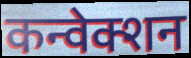
कन्वेक्शन